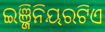
ଇଞ୍ଜିନିୟରଟିଏ